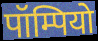
पॉम्पियो